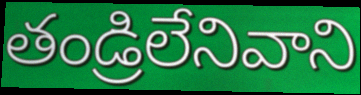
తండ్రిలేనివాని